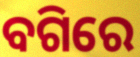
ବଗିରେ